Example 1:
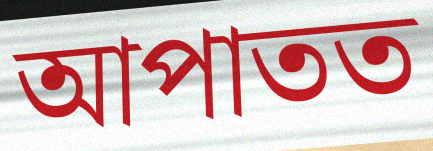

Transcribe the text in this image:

আপাতত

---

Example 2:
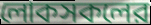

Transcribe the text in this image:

লোকসকলের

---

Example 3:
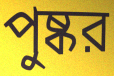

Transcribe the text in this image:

পুষ্কর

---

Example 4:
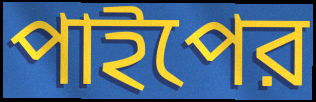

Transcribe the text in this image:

পাইপের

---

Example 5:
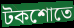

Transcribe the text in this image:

টকশোতে